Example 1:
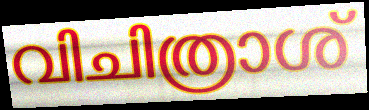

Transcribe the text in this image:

വിചിത്രാശ്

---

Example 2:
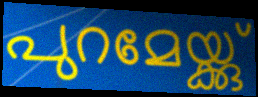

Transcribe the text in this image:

പുറമേയ്ക്കു്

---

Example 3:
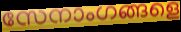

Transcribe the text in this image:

സേനാംഗങ്ങളെ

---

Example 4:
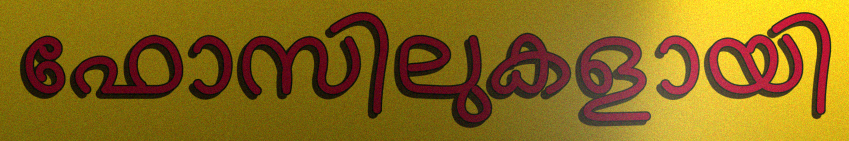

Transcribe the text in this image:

ഫോസിലുകളായി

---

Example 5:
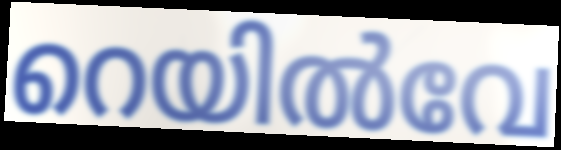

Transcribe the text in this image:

റെയിൽവേ